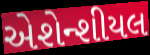
એશેન્શીયલ